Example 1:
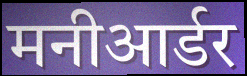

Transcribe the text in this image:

मनीआर्डर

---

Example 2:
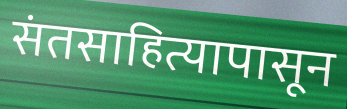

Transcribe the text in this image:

संतसाहित्यापासून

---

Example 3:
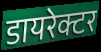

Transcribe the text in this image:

डायरेक्टर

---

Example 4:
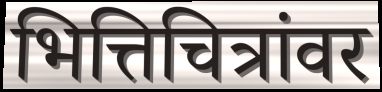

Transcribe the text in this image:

भित्तिचित्रांवर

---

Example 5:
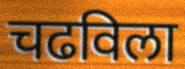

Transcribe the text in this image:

चढविला